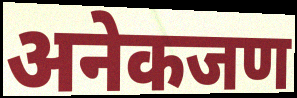
अनेकजण